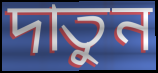
দাতুন